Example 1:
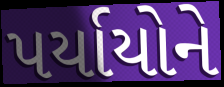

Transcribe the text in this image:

પર્યાયોને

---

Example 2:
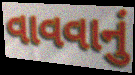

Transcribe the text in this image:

વાવવાનું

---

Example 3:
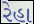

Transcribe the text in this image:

રેહા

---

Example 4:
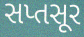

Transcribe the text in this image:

સપ્તસૂર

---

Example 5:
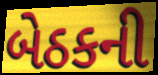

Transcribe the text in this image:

બેઠકની